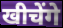
खीचेंगे